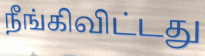
நீங்கிவிட்டது